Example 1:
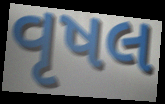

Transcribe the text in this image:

વૃષલ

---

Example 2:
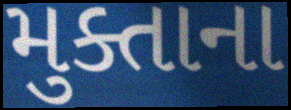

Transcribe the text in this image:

મુક્તાના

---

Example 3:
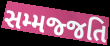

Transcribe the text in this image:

સમ્મજ્જતિ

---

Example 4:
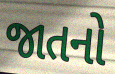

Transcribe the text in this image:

જાતનો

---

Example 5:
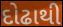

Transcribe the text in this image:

દોઢાથી